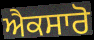
ਐਕਸਾਰੋ